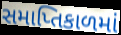
સમાપ્તિકાળમાં